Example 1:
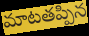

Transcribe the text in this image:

మాటతప్పిన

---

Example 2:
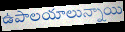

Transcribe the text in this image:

ఉపాలయాలున్నాయి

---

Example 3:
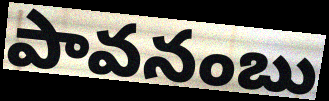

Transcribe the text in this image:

పావనంబు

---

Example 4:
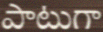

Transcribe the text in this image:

పాటుగా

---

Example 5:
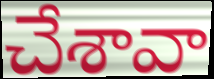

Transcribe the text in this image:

చేశావా